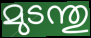
മുടന്തു